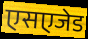
एसएजेड